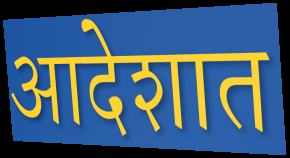
आदेशात